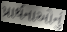
પ્રાર્થનાઓનું